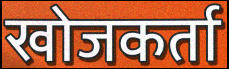
खोजकर्ता